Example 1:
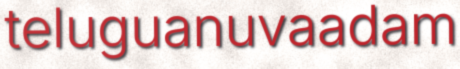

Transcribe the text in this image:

teluguanuvaadam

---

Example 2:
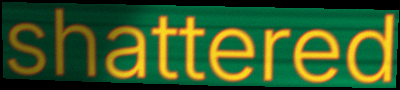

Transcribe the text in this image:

shattered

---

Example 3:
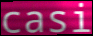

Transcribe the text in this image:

casi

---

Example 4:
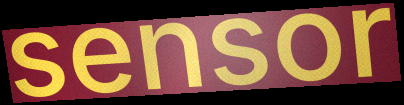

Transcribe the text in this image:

sensor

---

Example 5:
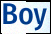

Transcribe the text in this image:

Boy